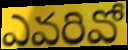
ఎవరివో